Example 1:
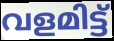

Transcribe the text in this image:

വളമിട്ട്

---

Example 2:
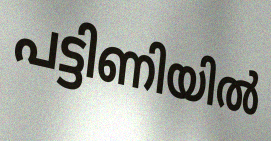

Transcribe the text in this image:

പട്ടിണിയിൽ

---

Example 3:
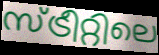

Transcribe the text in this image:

സ്ട്രീറ്റിലെ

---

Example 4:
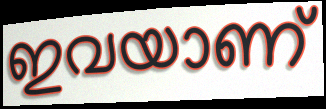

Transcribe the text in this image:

ഇവയാണ്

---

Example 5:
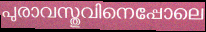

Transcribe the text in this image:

പുരാവസ്തുവിനെപ്പോലെ